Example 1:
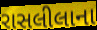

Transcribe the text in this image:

રાસલીલાના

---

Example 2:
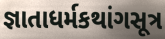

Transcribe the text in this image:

જ્ઞાતાધર્મકથાંગસૂત્ર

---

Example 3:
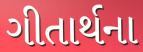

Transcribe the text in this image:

ગીતાર્થના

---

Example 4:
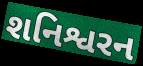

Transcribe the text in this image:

શનિશ્વરન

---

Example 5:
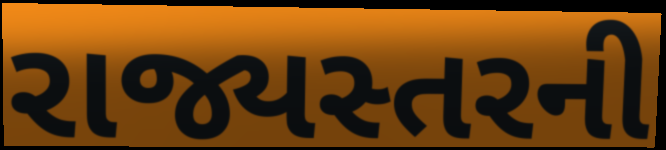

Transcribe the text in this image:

રાજ્યસ્તરની